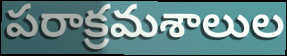
పరాక్రమశాలుల